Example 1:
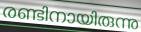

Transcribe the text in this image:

രണ്ടിനായിരുന്നു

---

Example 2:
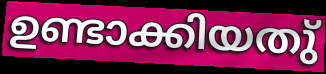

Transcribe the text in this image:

ഉണ്ടാക്കിയതു്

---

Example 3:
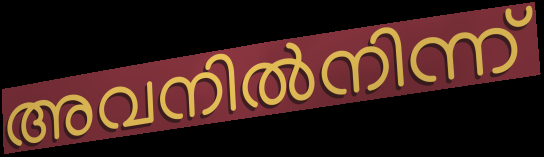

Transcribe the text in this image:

അവനിൽനിന്ന്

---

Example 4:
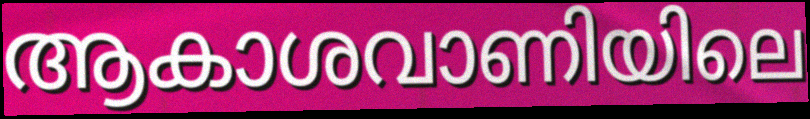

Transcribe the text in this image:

ആകാശവാണിയിലെ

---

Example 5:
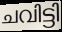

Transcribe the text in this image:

ചവിട്ടി